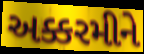
અક્કરમીને